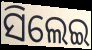
ସିଲେଇ